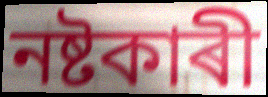
নষ্টকাৰী